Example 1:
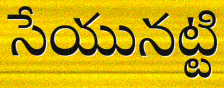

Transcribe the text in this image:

సేయునట్టి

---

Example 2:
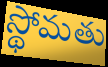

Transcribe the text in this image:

స్థోమతు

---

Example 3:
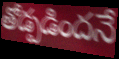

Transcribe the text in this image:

తోడ్పడిందనే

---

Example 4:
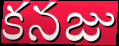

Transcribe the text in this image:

కనజు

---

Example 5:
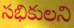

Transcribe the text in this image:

సభికులని